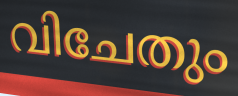
വിചേതും